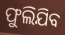
ଫୁଲିଯିବ